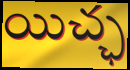
యిచ్ఛ